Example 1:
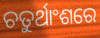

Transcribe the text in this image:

ଚତୁର୍ଥାଂଶରେ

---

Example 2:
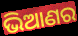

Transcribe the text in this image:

ଭିଆଣର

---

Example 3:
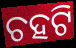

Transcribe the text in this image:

ଚହଟି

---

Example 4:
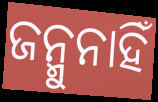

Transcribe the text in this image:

ଜନ୍ମୁନାହିଁ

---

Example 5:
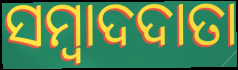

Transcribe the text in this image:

ସମ୍ବାଦଦାତା